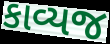
કાવ્યજ